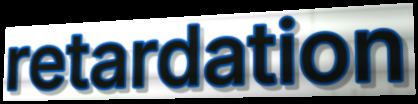
retardation